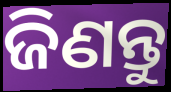
ଜିଣନ୍ତୁ